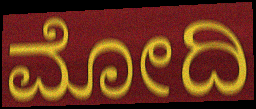
ಮೋದಿ